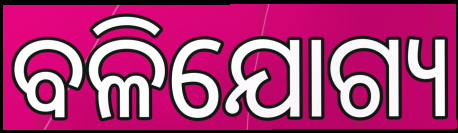
ବଳିଯୋଗ୍ୟ